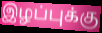
இழப்புக்கு